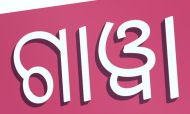
ଗାୱା